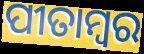
ପୀତାମ୍ବର